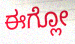
ಈಗ್ಲೋ